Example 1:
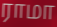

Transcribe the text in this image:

ராமா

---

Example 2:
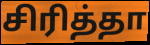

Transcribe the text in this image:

சிரித்தா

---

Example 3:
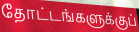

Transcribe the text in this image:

தோட்டங்களுக்குப்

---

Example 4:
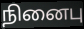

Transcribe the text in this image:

நினைபு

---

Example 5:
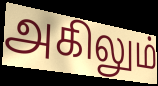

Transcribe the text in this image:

அகிலும்